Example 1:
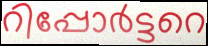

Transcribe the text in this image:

റിപ്പോർട്ടറെ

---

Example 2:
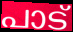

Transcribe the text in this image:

പാട്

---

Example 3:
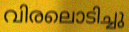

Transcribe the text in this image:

വിരലൊടിച്ചു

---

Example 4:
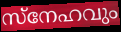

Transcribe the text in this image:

സ്നേഹവും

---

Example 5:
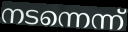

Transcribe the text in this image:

നടന്നെന്ന്